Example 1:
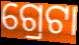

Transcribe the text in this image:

ଗ୍ରେଟା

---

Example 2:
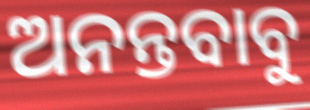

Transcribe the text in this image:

ଅନନ୍ତବାବୁ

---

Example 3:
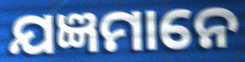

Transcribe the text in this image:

ଯଜ୍ଞମାନେ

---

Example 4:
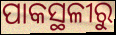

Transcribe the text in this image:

ପାକସ୍ଥଳୀରୁ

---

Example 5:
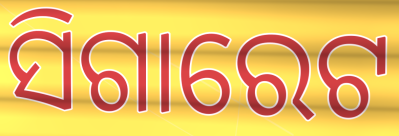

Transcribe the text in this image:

ସିଗାରେଟ